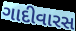
ગાદીવારસ